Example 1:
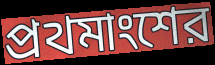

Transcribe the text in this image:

প্রথমাংশের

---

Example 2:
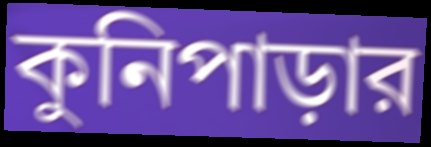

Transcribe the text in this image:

কুনিপাড়ার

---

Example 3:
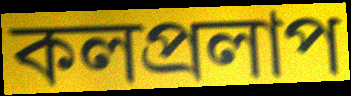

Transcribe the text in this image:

কলপ্রলাপ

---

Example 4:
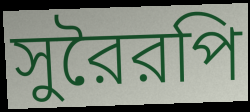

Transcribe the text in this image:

সুরৈরপি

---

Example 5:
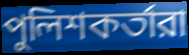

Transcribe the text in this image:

পুলিশকর্তারা